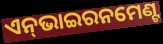
ଏନ୍‌ଭାଇରନମେଣ୍ଟ